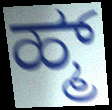
ಹ್ಮ್